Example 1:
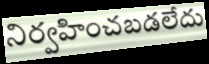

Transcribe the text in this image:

నిర్వహించబడలేదు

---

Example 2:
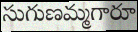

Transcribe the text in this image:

సుగుణమ్మగారూ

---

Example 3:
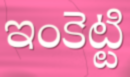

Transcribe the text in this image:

ఇంకెట్టి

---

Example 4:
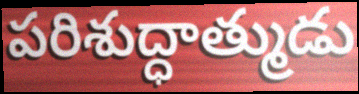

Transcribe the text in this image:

పరిశుద్ధాత్ముడు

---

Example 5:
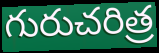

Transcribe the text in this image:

గురుచరిత్ర